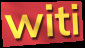
witi